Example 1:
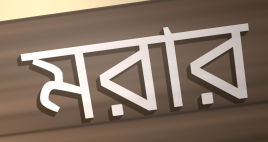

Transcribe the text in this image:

মরার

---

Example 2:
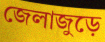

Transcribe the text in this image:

জেলাজুড়ে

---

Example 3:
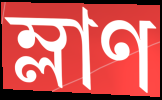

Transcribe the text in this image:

ম্লাণ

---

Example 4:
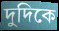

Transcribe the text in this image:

দুদিকে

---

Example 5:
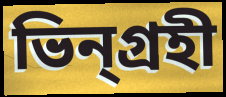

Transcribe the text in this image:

ভিন্গ্রহী